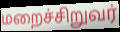
மறைச்சிறுவர்